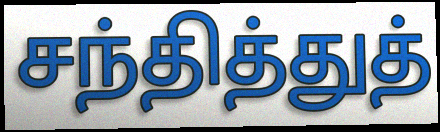
சந்தித்துத்